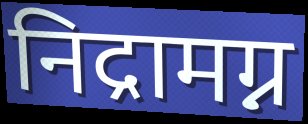
निद्रामग्न